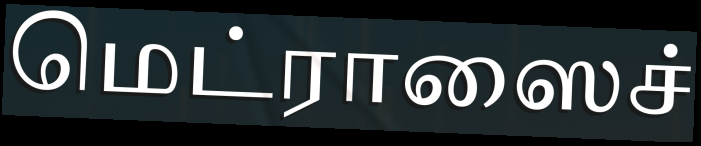
மெட்ராஸைச்